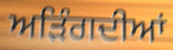
ਅੜਿੰਗਦੀਆਂ